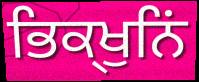
ਭਿਕ੍ਖੁਨਿਂ